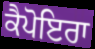
ਕੈਪੋਇਰਾ